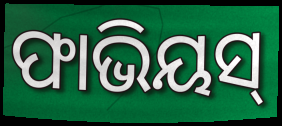
ଫାଭିୟସ୍